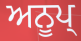
ਅਨੂਪ੍